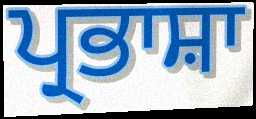
ਪ੍ਰਭਾਸ਼ਾ